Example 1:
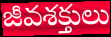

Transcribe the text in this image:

జీవశక్తులు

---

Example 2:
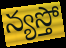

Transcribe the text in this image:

న్యస్తో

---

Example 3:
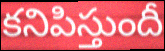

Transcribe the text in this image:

కనిపిస్తుందీ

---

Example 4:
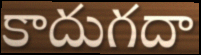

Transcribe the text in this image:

కాదుగదా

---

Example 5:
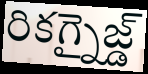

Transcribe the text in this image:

రికగ్నైజ్డ్